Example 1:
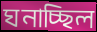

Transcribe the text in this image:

ঘনাচ্ছিল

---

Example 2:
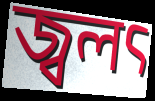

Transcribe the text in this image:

জ্বলৎ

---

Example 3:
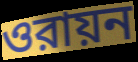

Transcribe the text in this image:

ওরায়ন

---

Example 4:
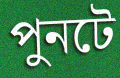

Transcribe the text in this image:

পুনটে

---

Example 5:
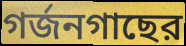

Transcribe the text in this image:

গর্জনগাছের